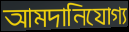
আমদানিযোগ্য